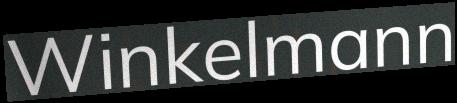
Winkelmann